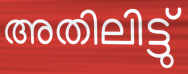
അതിലിട്ടു്